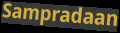
Sampradaan